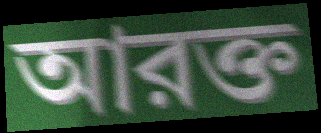
আরক্ত